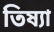
তিষ্যা